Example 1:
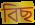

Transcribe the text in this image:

বিছ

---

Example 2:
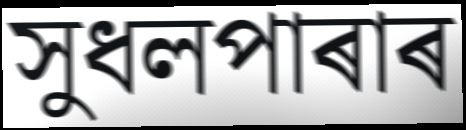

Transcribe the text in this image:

সুধলপাৰাৰ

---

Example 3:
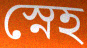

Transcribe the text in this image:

স্নেহ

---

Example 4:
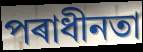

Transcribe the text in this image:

পৰাধীনতা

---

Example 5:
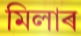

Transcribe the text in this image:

মিলাৰ